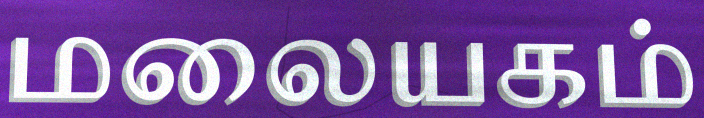
மலையகம்